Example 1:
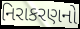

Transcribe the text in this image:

નિરાકરણનો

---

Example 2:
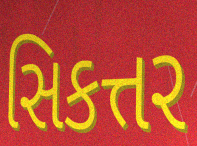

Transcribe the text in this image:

સિકત્તર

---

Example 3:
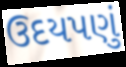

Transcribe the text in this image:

ઉદયપણું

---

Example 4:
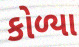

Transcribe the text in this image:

કોળ્યા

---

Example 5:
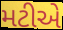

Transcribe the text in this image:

મટીએ